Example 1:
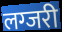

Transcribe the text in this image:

लग्‍जरी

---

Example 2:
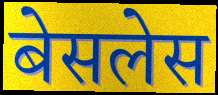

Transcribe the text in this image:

बेसलेस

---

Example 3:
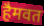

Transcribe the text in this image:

हैमवत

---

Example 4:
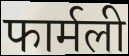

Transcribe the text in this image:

फार्मली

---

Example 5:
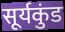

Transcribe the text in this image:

सूर्यकुंड